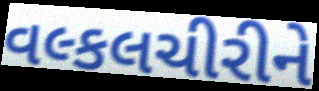
વલ્કલચીરીને